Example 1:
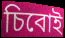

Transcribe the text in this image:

চিবোই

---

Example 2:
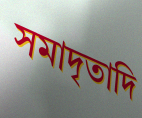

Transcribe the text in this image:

সমাদৃতাদি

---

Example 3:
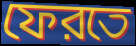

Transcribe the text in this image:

ফেরতে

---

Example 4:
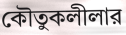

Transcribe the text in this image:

কৌতুকলীলার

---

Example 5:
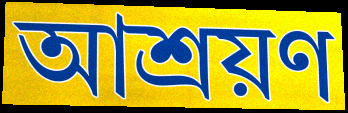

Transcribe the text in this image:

আশ্রয়ণ